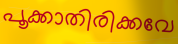
പൂക്കാതിരിക്കവേ